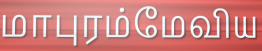
மாபுரம்மேவிய